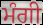
ਮੰਗੀ